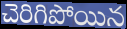
చెరిగిపోయిన